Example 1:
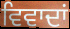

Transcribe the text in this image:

ਵਿਵਾਦਾਂ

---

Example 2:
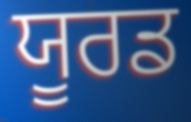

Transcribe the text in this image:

ਯੂਰਡ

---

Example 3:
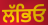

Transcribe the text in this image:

ਲੱਭਿਓ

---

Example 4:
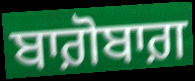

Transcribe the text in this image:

ਬਾਗ਼ੋਬਾਗ਼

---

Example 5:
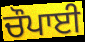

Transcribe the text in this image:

ਚੌਪਾਈ